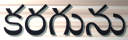
కరగును